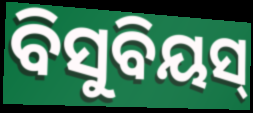
ବିସୁବିୟସ୍